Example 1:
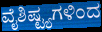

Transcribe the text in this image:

ವೈಶಿಷ್ಟ್ಯಗಳಿಂದ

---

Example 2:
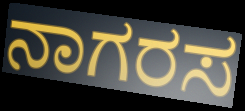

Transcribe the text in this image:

ನಾಗರಸ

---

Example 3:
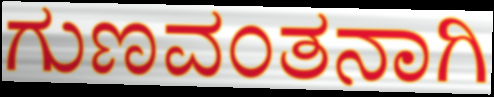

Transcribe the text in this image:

ಗುಣವಂತನಾಗಿ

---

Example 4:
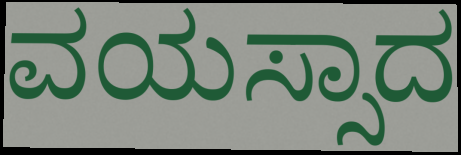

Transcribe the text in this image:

ವಯಸ್ಸಾದ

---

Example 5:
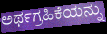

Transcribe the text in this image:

ಅರ್ಥಗ್ರಹಿಕೆಯನ್ನು